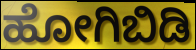
ಹೋಗಿಬಿಡಿ